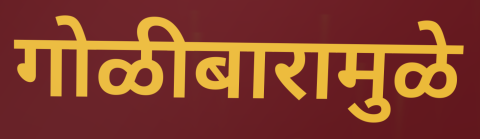
गोळीबारामुळे